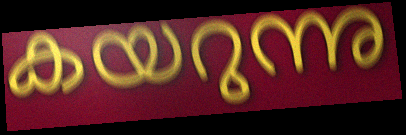
കയറുന്നു